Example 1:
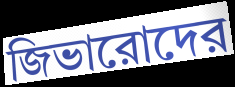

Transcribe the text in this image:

জিভারোদের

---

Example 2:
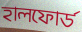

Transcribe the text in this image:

হালফোর্ড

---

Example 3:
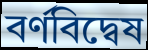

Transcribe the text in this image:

বর্ণবিদ্বেষ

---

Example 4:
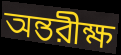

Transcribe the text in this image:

অন্তরীক্ষ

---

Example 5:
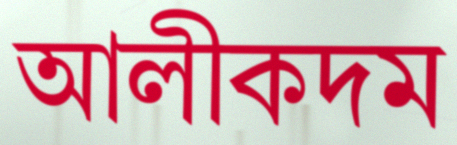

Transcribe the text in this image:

আলীকদম